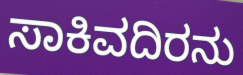
ಸಾಕಿವದಿರನು